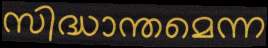
സിദ്ധാന്തമെന്ന